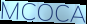
MCOCA